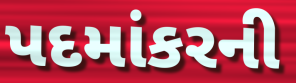
પદમાંકરની